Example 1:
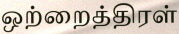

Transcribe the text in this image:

ஒற்றைத்திரள்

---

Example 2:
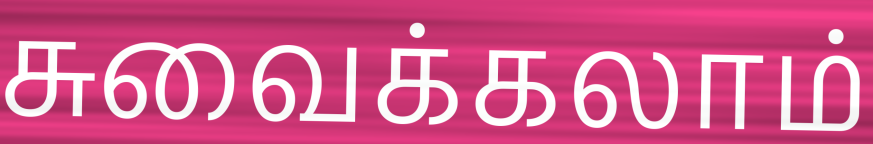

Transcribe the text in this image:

சுவைக்கலாம்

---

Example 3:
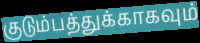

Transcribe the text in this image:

குடும்பத்துக்காகவும்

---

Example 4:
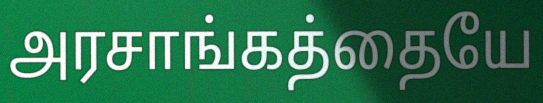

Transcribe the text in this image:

அரசாங்கத்தையே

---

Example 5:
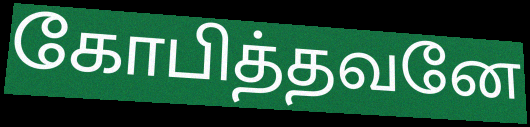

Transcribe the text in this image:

கோபித்தவனே